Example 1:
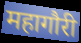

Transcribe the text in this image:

महागौरी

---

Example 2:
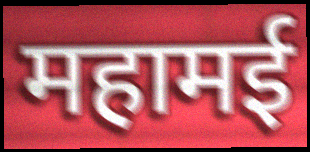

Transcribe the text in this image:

महामई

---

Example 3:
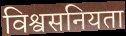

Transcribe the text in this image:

विश्वसनियता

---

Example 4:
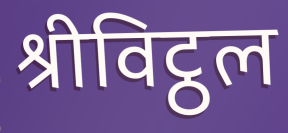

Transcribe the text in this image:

श्रीविट्ठल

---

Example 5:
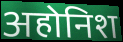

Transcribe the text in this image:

अहोनिश